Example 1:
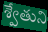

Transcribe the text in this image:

శ్వేతుని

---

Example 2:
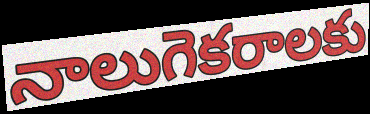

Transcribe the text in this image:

నాలుగెకరాలకు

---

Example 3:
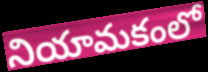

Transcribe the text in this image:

నియామకంలో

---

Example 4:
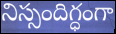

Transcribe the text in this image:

నిస్సందిగ్ధంగా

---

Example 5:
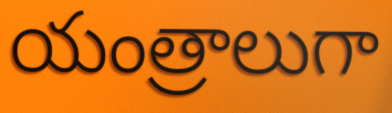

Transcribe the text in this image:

యంత్రాలుగా